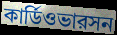
কার্ডিওভারসন